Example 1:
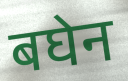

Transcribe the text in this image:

बघेन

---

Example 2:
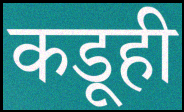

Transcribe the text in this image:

कडूही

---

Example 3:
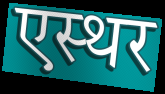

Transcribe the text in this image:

एस्थर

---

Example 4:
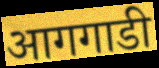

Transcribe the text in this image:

आगगाडी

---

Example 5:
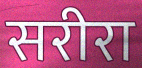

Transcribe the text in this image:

सरीरा